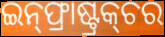
ଇନ୍‌ଫ୍ରାଷ୍ଟ୍ରକ୍‌ଚର